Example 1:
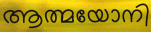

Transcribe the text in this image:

ആത്മയോനി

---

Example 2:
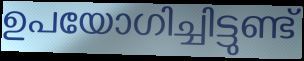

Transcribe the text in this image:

ഉപയോഗിച്ചിട്ടുണ്ട്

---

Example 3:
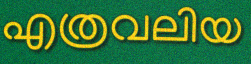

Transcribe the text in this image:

എത്രവലിയ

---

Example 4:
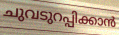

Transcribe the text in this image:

ചുവടുറപ്പിക്കാൻ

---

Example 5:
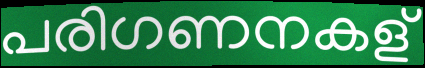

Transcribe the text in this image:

പരിഗണനകള്